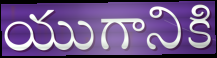
యుగానికి